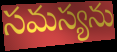
సమస్యను